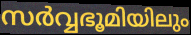
സർവ്വഭൂമിയിലും